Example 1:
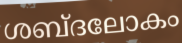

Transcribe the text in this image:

ശബ്ദലോകം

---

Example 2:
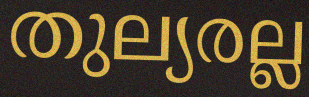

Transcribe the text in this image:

തുല്യരല്ല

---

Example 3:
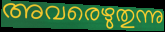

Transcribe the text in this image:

അവരെഴുതുന്നു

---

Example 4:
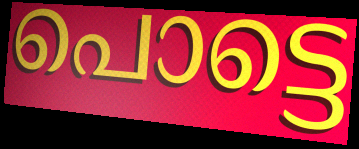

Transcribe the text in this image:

പൊട്ടെ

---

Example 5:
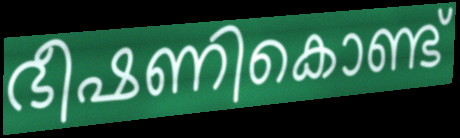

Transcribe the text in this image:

ഭീഷണികൊണ്ട്